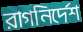
রাগনির্দেশ